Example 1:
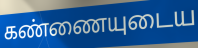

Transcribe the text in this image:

கண்ணையுடைய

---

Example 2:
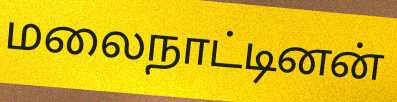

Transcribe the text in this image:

மலைநாட்டினன்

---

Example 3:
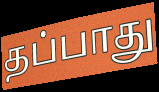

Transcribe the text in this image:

தப்பாது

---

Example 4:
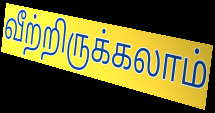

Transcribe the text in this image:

வீற்றிருக்கலாம்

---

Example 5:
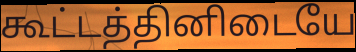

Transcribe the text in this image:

கூட்டத்தினிடையே